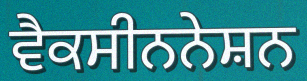
ਵੈਕਸੀਨਨੇਸ਼ਨ